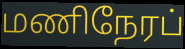
மணிநேரப்